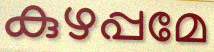
കുഴപ്പമേ